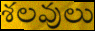
శలవులు